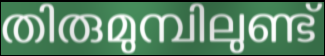
തിരുമുമ്പിലുണ്ട്